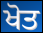
ਖੋਤ